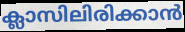
ക്ലാസിലിരിക്കാൻ